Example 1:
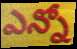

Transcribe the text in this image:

ఎన్నో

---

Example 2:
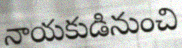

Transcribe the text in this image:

నాయకుడినుంచి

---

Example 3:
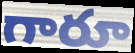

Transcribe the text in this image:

గారూ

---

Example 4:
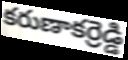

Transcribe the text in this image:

కరుణాకర్రెడ్డి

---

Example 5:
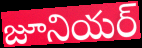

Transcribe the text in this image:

జూనియర్